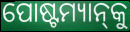
ପୋଷ୍ଟମ୍ୟାନ୍‌କୁ